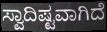
ಸ್ವಾದಿಷ್ಟವಾಗಿದೆ